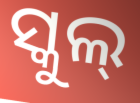
ସ୍କୁଲ୍